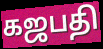
கஜபதி